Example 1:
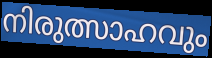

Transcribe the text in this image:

നിരുത്സാഹവും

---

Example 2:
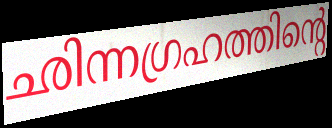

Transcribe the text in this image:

ഛിന്നഗ്രഹത്തിന്റെ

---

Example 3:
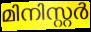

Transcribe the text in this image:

മിനിസ്റ്റർ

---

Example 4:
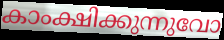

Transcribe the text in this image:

കാംക്ഷിക്കുന്നുവോ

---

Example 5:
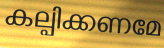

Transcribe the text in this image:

കല്പിക്കണമേ